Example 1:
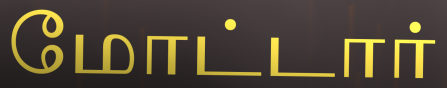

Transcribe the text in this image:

மோட்டார்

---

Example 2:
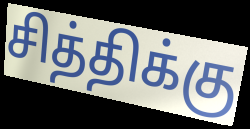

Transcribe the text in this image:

சித்திக்கு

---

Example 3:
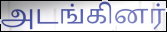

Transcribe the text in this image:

அடங்கினர்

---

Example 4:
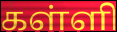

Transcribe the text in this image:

கள்ளி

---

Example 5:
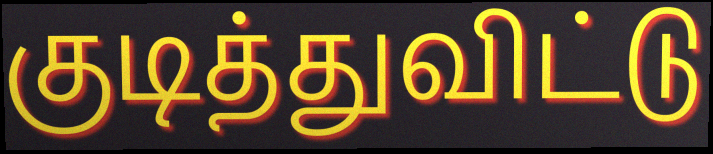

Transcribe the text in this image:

குடித்துவிட்டு